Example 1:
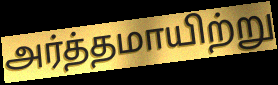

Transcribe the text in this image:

அர்த்தமாயிற்று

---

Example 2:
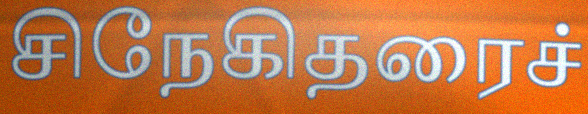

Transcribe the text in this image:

சிநேகிதரைச்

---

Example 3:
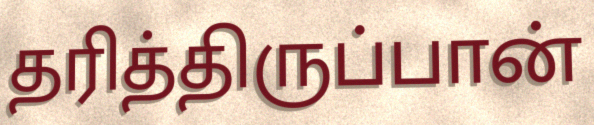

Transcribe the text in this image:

தரித்திருப்பான்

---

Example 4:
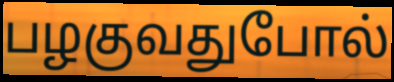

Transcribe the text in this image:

பழகுவதுபோல்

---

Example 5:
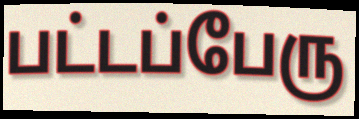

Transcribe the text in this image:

பட்டப்பேரு